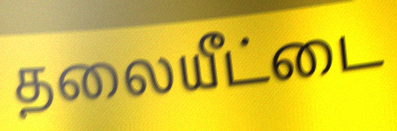
தலையீட்டை